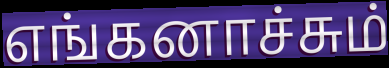
எங்கனாச்சும்